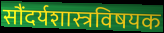
सौंदर्यशास्त्रविषयक